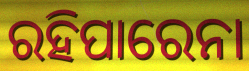
ରହିପାରେନା